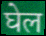
घेल